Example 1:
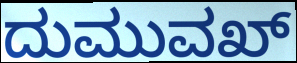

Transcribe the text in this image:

ದುಮುವಖ್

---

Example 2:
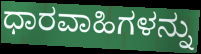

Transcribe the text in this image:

ಧಾರವಾಹಿಗಳನ್ನು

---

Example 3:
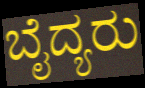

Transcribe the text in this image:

ಬೈದ್ಯರು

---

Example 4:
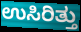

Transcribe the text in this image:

ಉಸಿರಿತ್ತು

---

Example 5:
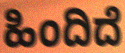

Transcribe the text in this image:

ಹಿಂದಿದೆ